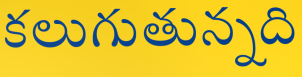
కలుగుతున్నది